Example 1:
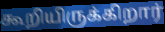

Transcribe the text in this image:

கூறியிருக்கிறார்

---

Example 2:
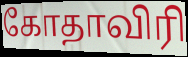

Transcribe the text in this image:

கோதாவிரி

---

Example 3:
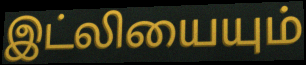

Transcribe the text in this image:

இட்லியையும்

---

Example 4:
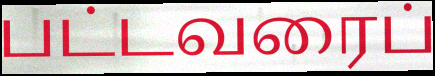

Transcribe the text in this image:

பட்டவரைப்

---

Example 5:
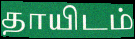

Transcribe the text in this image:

தாயிடம்